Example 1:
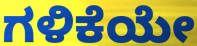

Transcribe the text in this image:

ಗಳಿಕೆಯೇ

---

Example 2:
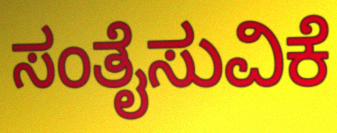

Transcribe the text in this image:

ಸಂತೈಸುವಿಕೆ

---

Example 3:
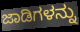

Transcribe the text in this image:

ಜಾಡಿಗಳನ್ನು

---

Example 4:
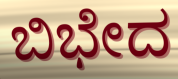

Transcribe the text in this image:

ಬಿಭೇದ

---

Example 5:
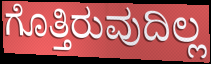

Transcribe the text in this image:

ಗೊತ್ತಿರುವುದಿಲ್ಲ